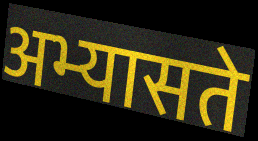
अभ्यासते